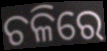
ଚଳିରେ